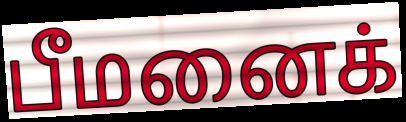
பீமனைக்